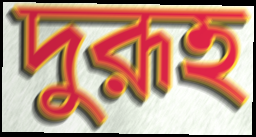
দুরূহ